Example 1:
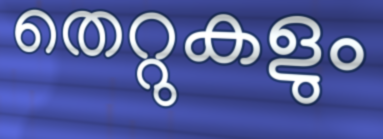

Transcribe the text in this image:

തെറ്റുകളും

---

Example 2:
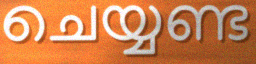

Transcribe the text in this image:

ചെയ്യണ്ട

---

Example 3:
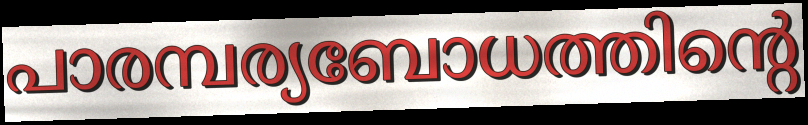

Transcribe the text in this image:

പാരമ്പര്യബോധത്തിന്റെ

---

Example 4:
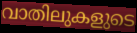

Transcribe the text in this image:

വാതിലുകളുടെ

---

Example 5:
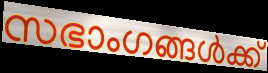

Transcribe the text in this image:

സഭാംഗങ്ങൾക്ക്